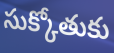
సుక్కోతుకు